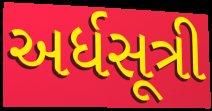
અર્ધસૂત્રી